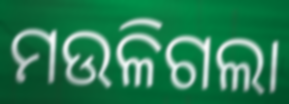
ମଉଳିଗଲା